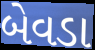
બેવડા